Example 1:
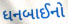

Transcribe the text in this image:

ધનબાઈનો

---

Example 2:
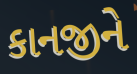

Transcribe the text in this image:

કાનજીને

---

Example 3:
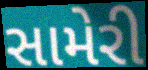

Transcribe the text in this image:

સામેરી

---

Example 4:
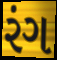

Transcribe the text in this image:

રંગ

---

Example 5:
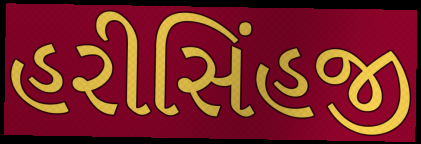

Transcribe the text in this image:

હરીસિંહજી